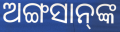
ଅଙ୍ଗସାନ୍‌ଙ୍କ